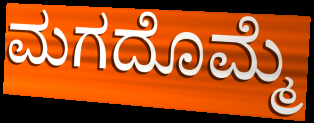
ಮಗದೊಮ್ಮೆ